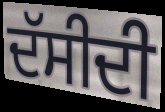
ਦੱਸੀਦੀ